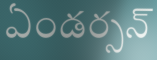
ఏండర్సన్